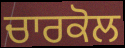
ਚਾਰਕੋਲ